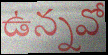
ఉన్నవో